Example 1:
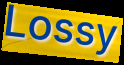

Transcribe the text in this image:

Lossy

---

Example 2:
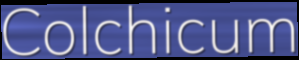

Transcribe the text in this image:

Colchicum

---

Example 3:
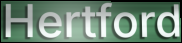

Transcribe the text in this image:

Hertford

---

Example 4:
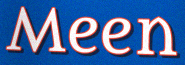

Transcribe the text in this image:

Meen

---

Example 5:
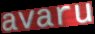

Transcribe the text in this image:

avaru